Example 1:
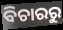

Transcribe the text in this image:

ବିଚାରରୁ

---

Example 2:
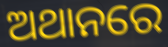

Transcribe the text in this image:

ଅଥାନରେ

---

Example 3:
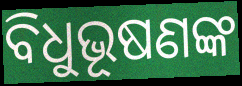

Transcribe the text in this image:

ବିଧୁଭୂଷଣଙ୍କ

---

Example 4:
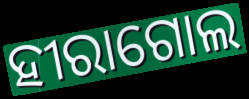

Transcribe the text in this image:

ହୀରାଗୋଲ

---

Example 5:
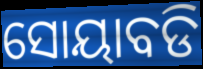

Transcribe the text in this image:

ସୋୟାବଡି